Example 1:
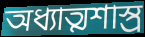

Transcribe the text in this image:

অধ্যাত্মশাস্ত্র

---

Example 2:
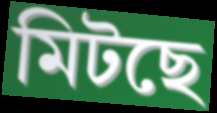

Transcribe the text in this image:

মিটছে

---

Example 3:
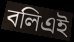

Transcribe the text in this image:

বলিএই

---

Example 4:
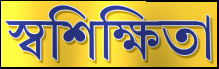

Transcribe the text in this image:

স্বশিক্ষিতা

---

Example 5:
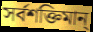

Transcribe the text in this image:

সর্বশক্তিমান্